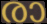
രാ